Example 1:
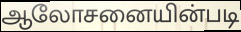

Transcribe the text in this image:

ஆலோசனையின்படி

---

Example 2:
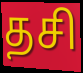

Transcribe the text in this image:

தசி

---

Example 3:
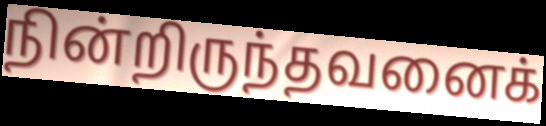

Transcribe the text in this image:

நின்றிருந்தவனைக்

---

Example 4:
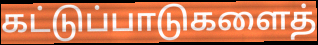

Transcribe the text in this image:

கட்டுப்பாடுகளைத்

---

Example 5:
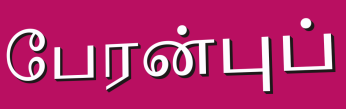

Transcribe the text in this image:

பேரன்புப்